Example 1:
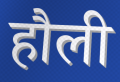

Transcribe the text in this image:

हौली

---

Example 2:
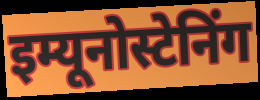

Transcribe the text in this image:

इम्यूनोस्टेनिंग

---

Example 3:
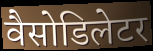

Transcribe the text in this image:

वैसोडिलेटर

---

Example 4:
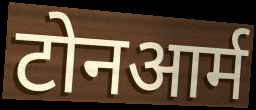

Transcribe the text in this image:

टोनआर्म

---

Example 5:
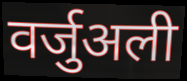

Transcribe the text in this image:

वर्जुअली